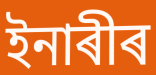
ইনাৰীৰ